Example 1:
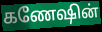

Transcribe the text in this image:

கணேஷின்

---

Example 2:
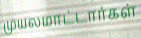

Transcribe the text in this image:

முயலமாட்டார்கள்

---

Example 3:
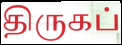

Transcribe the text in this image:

திருகப்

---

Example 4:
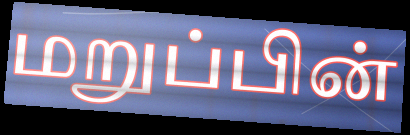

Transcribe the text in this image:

மறுப்பின்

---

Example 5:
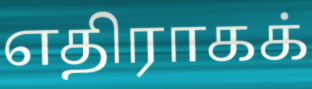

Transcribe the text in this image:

எதிராகக்